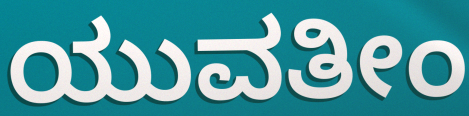
ಯುವತೀಂ